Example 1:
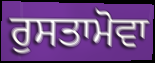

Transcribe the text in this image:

ਰੁਸਤਾਮੋਵਾ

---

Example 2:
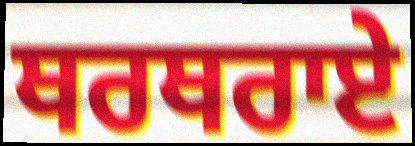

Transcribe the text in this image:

ਥਰਥਰਾਏ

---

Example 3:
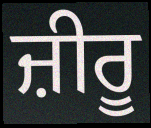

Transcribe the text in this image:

ਜ਼ੀਰੂ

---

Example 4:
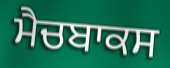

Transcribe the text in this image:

ਮੈਚਬਾਕਸ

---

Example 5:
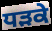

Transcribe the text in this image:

ਧੜਕੇ